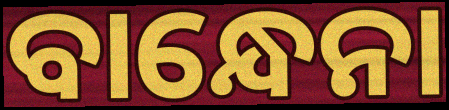
ବାନ୍ଧେନା